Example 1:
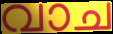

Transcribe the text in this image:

വാച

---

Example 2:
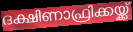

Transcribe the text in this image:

ദക്ഷിണാഫ്രിക്കയ്ക്ക്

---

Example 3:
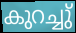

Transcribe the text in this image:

കുറച്ചു്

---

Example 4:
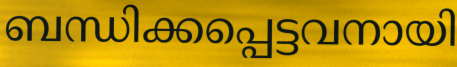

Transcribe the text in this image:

ബന്ധിക്കപ്പെട്ടവനായി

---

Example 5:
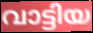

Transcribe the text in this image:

വാട്ടിയ